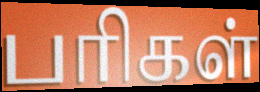
பரிகள்